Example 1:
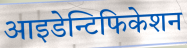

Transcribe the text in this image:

आइडेन्टिफिकेशन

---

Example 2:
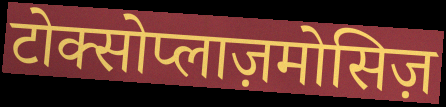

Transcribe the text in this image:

टोक्सोप्लाज़मोसिज़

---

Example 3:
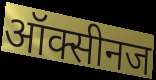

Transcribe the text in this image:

ऑक्सीनज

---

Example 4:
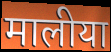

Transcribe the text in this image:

मालीया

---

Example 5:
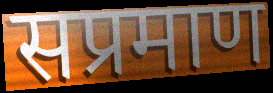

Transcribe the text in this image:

सप्रमाण